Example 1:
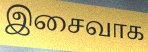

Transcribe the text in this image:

இசைவாக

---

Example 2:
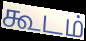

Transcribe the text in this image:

கூடம்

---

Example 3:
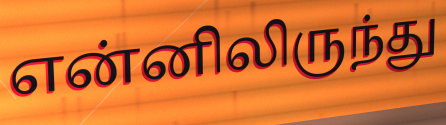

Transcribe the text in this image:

என்னிலிருந்து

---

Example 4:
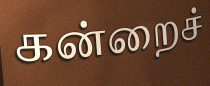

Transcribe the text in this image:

கன்றைச்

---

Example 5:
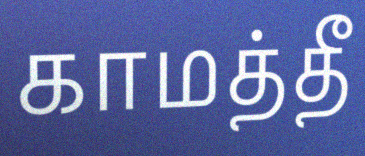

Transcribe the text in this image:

காமத்தீ